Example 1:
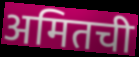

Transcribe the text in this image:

अमितची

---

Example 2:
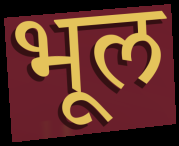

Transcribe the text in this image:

भूल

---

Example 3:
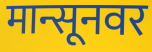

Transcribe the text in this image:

मान्सूनवर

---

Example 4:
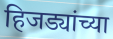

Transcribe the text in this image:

हिजड्यांच्या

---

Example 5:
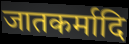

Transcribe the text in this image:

जातकर्मादि